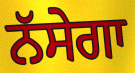
ਨੱਸੇਗਾ